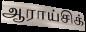
ஆராய்சிக்